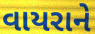
વાયરાને